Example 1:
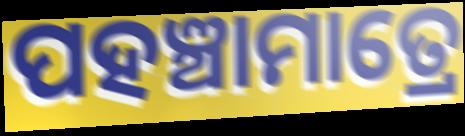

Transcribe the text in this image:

ପହଞ୍ଚାମାତ୍ରେ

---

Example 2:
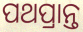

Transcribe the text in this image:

ପଥପ୍ରାନ୍ତ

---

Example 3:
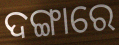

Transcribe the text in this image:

ଦଙ୍ଗାରେ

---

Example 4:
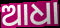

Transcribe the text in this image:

ଆଧା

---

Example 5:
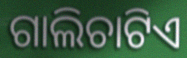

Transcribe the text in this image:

ଗାଲିଚାଟିଏ